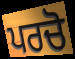
ਪਰਚੋ